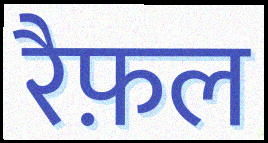
रैफ़ल